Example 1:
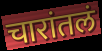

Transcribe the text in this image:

चारांतलं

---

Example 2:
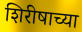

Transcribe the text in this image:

शिरीषाच्या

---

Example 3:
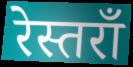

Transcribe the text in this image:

रेस्तराँ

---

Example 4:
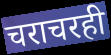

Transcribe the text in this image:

चराचरही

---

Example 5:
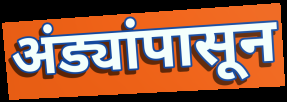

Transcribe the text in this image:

अंड्यांपासून